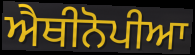
ਐਥੀਨੋਪੀਆ